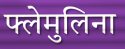
फ्लेमुलिना